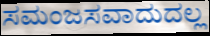
ಸಮಂಜಸವಾದುದಲ್ಲ